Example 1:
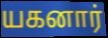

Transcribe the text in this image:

யகனார்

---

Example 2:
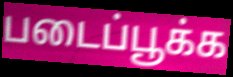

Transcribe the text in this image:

படைப்பூக்க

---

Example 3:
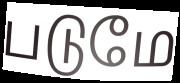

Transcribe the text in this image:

படுமே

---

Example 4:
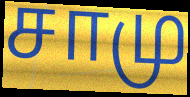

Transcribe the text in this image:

சாமு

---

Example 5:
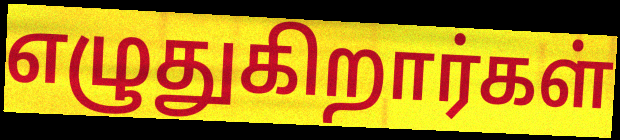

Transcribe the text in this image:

எழுதுகிறார்கள்